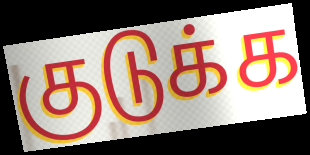
குடுக்க